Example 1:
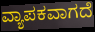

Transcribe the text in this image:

ವ್ಯಾಪಕವಾಗದೆ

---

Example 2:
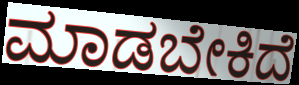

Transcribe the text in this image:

ಮಾಡಬೇಕಿದೆ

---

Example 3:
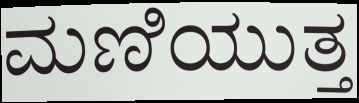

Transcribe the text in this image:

ಮಣಿಯುತ್ತ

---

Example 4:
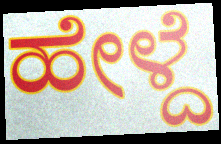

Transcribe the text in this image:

ಹೇಳ್ದೆ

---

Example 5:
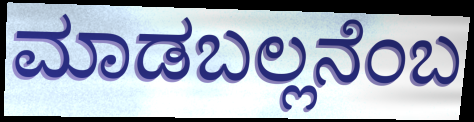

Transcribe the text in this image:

ಮಾಡಬಲ್ಲನೆಂಬ